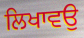
ਲਿਖਾਵਉ